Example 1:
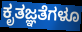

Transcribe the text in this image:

ಕೃತಜ್ಞತೆಗಳೂ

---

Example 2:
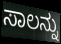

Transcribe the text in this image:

ಸಾಲನ್ನು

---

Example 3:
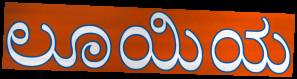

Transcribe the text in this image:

ಲೂಯಿಯ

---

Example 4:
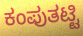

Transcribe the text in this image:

ಕಂಪುತಟ್ಟಿ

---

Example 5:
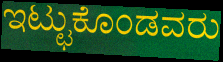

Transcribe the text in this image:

ಇಟ್ಟುಕೊಂಡವರು